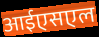
आईएसएल